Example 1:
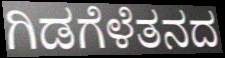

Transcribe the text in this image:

ಗಿಡಗೆಳೆತನದ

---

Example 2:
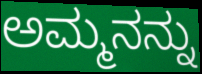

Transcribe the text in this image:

ಅಮ್ಮನನ್ನು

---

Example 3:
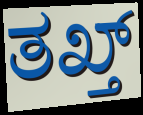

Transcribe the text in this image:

ತಖ್ತ್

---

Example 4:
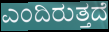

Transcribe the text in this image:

ಎಂದಿರುತ್ತದೆ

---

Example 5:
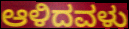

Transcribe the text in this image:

ಆಳಿದವಳು